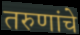
तरुणांचे